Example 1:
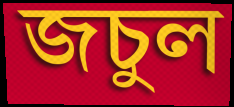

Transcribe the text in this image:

জচুল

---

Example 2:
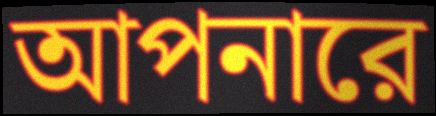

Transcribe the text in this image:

আপনারে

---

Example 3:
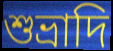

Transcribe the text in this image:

শুভ্রাদি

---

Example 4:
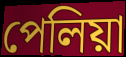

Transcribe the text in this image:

পেলিয়া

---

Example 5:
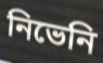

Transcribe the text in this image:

নিভেনি